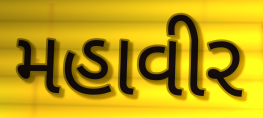
મહાવીર